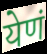
येणं